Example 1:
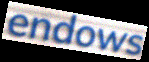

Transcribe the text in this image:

endows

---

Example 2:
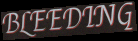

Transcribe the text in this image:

BLEEDING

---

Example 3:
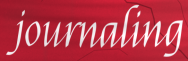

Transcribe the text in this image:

journaling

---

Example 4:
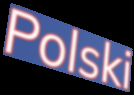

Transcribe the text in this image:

Polski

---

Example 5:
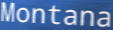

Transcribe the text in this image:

Montana